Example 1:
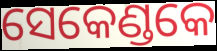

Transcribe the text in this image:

ସେକେଣ୍ଡକେ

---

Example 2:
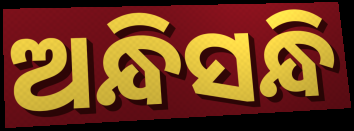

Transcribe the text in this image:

ଅନ୍ଧିସନ୍ଧି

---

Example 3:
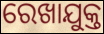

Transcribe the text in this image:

ରେଖାଯୁକ୍ତ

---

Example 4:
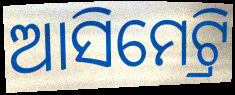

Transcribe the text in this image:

ଆସିମେଟ୍ରି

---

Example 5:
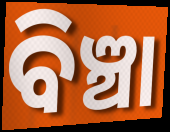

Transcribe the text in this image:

ବିଞ୍ଚା